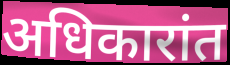
अधिकारांत